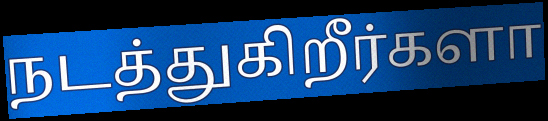
நடத்துகிறீர்களா